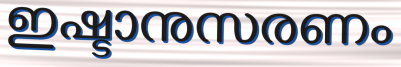
ഇഷ്ടാനുസരണം